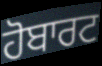
ਹੋਬਾਰਟ